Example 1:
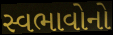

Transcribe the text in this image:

સ્વભાવોનો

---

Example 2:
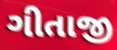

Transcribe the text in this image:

ગીતાજી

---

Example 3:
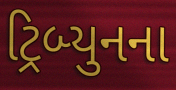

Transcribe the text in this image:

ટ્રિબ્યુનના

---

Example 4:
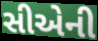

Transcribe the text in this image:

સીએની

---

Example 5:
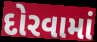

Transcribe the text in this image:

દોરવામાં